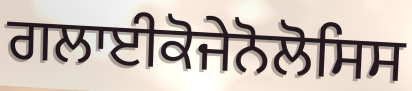
ਗਲਾਈਕੋਜੇਨੋਲੋਸਿਸ